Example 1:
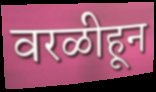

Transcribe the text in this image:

वरळीहून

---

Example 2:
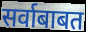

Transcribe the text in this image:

सर्वाबाबत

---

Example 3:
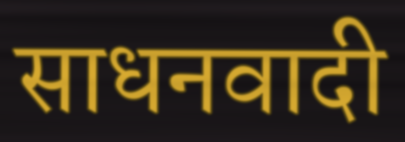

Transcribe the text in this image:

साधनवादी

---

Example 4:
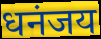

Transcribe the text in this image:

धनंजय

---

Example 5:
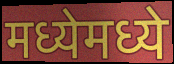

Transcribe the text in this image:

मध्येमध्ये